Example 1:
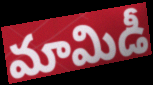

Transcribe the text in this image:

మామిడీ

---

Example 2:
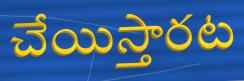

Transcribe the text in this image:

చేయిస్తారట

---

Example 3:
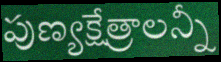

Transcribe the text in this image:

పుణ్యక్షేత్రాలన్నీ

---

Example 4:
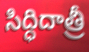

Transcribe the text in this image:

సిద్ధిదాత్రీ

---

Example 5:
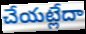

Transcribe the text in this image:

చేయట్లేదా